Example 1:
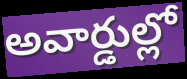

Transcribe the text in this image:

అవార్డుల్లో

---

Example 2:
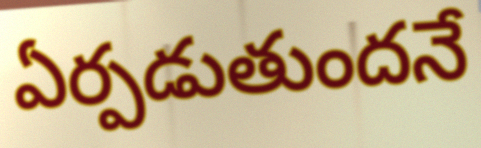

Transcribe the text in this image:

ఏర్పడుతుందనే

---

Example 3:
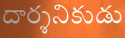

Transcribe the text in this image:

దార్శనికుడు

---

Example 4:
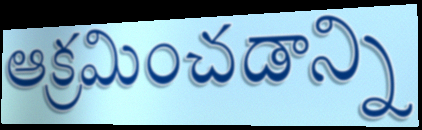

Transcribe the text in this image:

ఆక్రమించడాన్ని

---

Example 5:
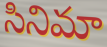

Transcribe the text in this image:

సినిమా